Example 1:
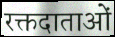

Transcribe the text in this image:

रक्तदाताओं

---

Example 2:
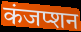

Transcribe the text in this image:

कंजप्शन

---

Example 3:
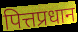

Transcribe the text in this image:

पित्तप्रधान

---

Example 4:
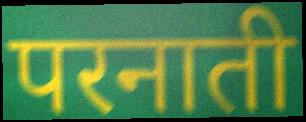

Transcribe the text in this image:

परनाती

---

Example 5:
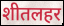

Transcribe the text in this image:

शीतलहर